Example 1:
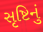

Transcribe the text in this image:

સૃષ્ટિનું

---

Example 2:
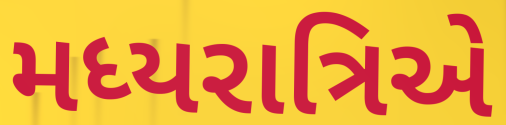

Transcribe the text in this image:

મધ્યરાત્રિએ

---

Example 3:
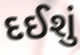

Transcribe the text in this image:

દઈશું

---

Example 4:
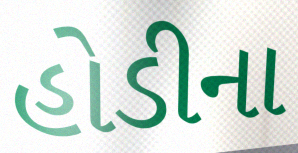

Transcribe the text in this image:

હોડીના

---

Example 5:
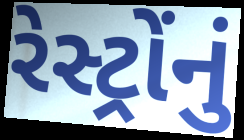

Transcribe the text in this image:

રેસ્ટ્રોંનું